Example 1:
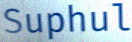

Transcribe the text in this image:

Suphul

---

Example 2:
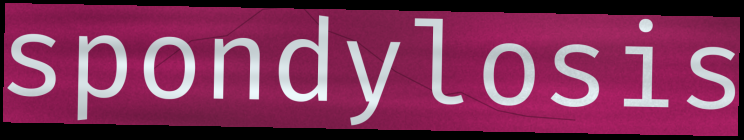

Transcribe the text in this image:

spondylosis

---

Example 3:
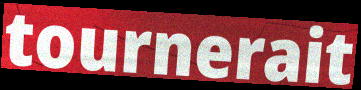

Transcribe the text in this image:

tournerait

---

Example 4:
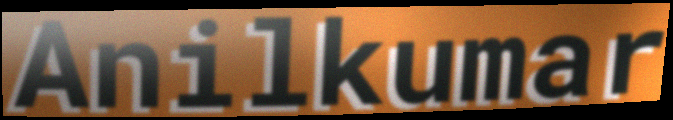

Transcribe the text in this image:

Anilkumar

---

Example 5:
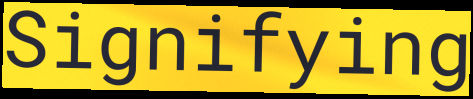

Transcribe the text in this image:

Signifying